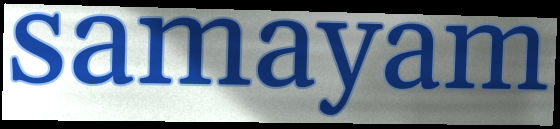
samayam